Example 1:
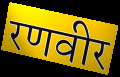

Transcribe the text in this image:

रणवीर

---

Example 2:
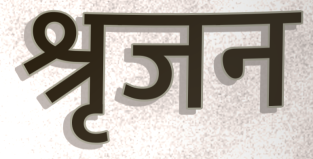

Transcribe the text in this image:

श्रृजन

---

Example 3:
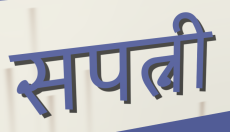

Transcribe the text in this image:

सपत्नी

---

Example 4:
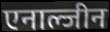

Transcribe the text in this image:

एनाल्जीन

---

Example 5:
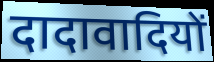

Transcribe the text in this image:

दादावादियों